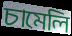
চামেলি